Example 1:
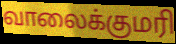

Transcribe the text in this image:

வாலைக்குமரி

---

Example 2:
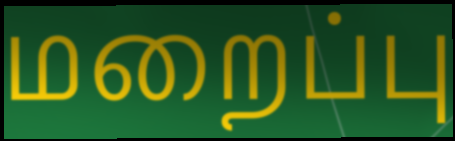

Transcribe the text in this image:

மறைப்பு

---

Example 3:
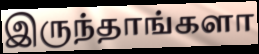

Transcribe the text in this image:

இருந்தாங்களா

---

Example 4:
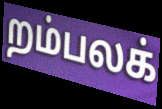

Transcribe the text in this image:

றம்பலக்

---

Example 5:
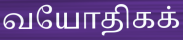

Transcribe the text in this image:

வயோதிகக்